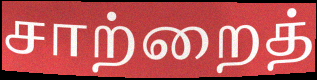
சாற்றைத்